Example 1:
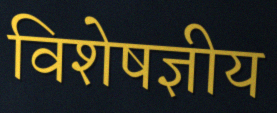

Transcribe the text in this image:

विशेषज्ञीय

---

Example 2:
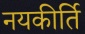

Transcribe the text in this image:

नयकीर्ति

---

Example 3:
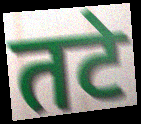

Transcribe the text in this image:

तटे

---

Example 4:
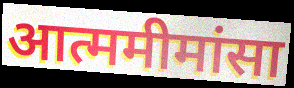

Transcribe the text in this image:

आत्ममीमांसा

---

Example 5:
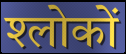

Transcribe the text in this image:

श्लोकों